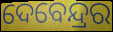
ଦେବେନ୍ଦ୍ରର